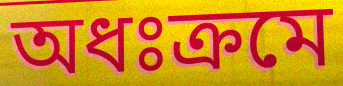
অধঃক্রমে